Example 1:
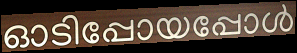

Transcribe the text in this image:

ഓടിപ്പോയപ്പോൾ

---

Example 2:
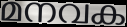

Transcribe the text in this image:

മനവക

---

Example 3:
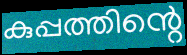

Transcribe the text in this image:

കുപ്പത്തിന്റെ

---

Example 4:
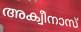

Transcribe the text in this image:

അക്വീനാസ്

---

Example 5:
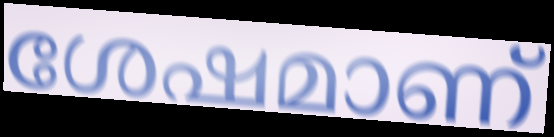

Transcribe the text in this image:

ശേഷമാണ്